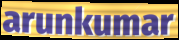
arunkumar